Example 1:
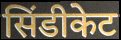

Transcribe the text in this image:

सिंडीकेट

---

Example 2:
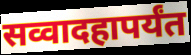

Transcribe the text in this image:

सव्वादहापर्यंत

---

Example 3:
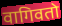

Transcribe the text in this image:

वागिवतो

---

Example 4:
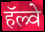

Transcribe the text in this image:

हॅल्वे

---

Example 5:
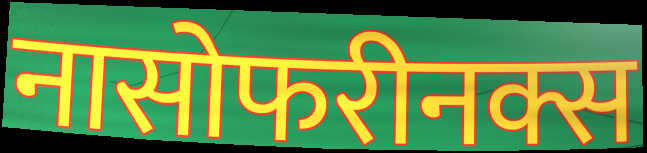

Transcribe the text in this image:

नासोफरीनक्स